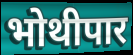
भोथीपार